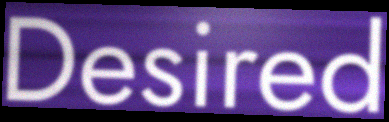
Desired